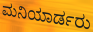
ಮನಿಯಾರ್ಡರು